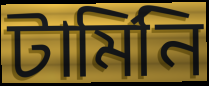
টার্মিনি